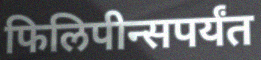
फिलिपीन्सपर्यंत